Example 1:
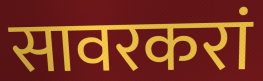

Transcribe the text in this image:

सावरकरां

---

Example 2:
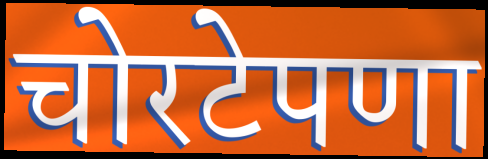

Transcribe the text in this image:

चोरटेपणा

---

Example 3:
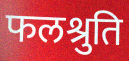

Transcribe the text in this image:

फलश्रुति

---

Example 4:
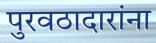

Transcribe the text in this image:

पुरवठादारांना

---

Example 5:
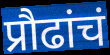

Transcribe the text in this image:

प्रौढांचं